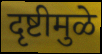
दृष्टीमुळे